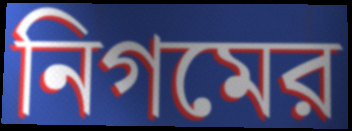
নিগমের